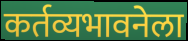
कर्तव्यभावनेला